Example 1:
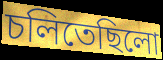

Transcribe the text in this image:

চলিতেছিলো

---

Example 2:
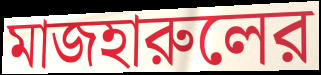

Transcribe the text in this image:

মাজহারুলের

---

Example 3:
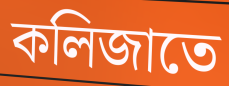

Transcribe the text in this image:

কলিজাতে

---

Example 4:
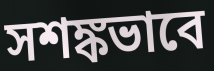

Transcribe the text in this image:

সশঙ্কভাবে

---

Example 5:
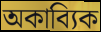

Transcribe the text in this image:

অকাব্যিক